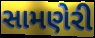
સામણેરી